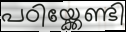
പഠിയ്ക്കേണ്ടി